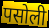
पसोली